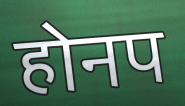
होनप